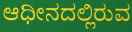
ಆಧೀನದಲ್ಲಿರುವ